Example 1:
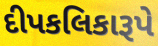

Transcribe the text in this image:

દીપકલિકારૂપે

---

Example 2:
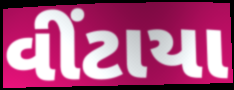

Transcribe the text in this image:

વીંટાયા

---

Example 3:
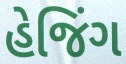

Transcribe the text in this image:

હેજિંગ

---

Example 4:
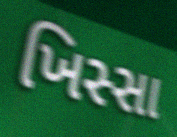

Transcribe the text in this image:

ખિસ્સા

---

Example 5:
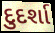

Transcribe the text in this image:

દુદર્શા